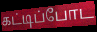
கட்டிப்போட